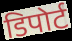
डिपोर्ट